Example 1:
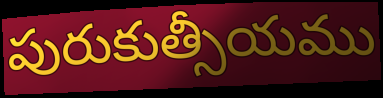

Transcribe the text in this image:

పురుకుత్సీయము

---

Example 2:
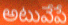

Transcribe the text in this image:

అటువేపే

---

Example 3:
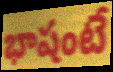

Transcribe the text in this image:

భాషంటే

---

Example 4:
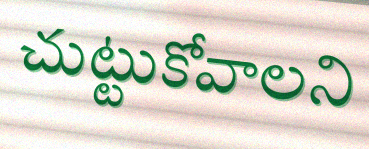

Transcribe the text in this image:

చుట్టుకోవాలని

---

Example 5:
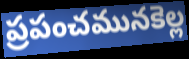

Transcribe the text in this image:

ప్రపంచమునకెల్ల